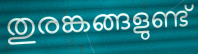
തുരങ്കങ്ങളുണ്ട്